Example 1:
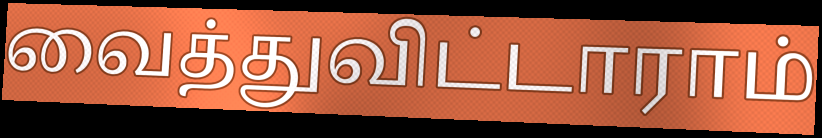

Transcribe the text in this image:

வைத்துவிட்டாராம்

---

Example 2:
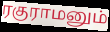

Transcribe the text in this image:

ரகுராமனும்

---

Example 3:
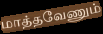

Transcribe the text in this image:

மாத்தவேணும்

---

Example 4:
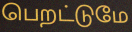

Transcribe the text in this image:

பெறட்டுமே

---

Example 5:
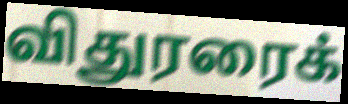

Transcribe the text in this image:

விதுரரைக்